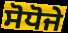
ਸੋਧੋਜੇ